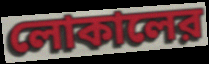
লোকালের